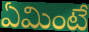
ఏమింటే